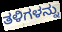
ತಳಿಗಳನ್ನು